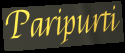
Paripurti